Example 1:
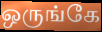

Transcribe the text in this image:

ஒருங்கே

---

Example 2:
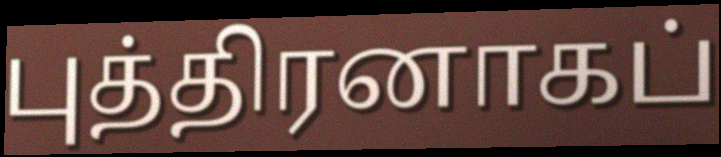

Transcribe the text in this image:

புத்திரனாகப்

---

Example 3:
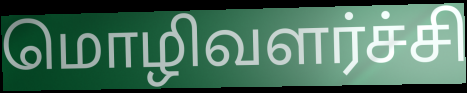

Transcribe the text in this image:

மொழிவளர்ச்சி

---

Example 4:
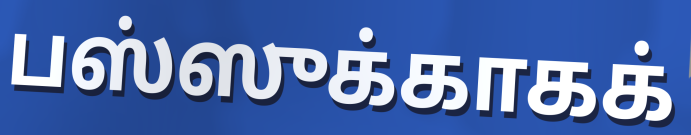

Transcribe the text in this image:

பஸ்ஸுக்காகக்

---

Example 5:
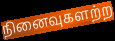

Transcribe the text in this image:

நினைவுகளற்ற